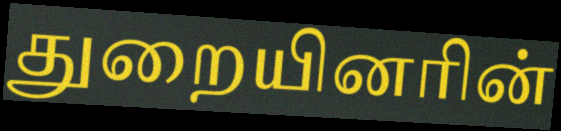
துறையினரின்